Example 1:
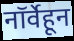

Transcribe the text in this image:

नॉर्वेहून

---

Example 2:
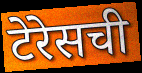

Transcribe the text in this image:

टेरेसची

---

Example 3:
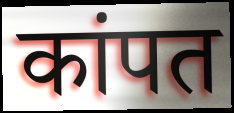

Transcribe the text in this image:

कांपत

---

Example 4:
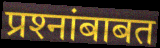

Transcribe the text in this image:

प्रश्‍नांबाबत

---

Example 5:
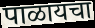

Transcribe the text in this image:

पाळायचा